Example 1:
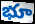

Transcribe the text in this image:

భూ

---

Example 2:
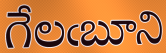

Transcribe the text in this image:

గేలఁబూని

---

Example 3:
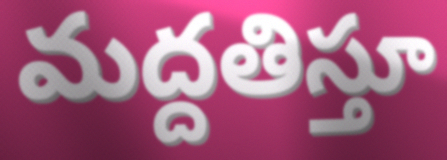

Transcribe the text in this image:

మద్దతిస్తూ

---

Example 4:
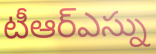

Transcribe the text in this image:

టీఆర్ఎస్ను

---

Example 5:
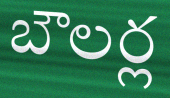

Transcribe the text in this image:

బౌలర్ల